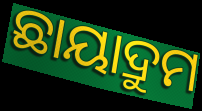
ଛାୟାଦ୍ରୁମ